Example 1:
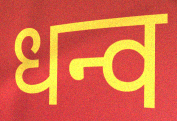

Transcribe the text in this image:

धन्व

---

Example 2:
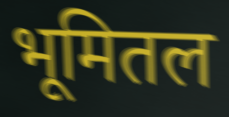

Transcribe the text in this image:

भूमितल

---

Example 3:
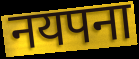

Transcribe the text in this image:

नयपना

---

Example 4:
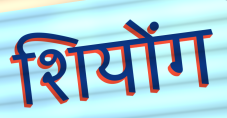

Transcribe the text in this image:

शियोंग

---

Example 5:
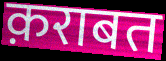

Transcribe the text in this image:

क़राबत